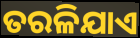
ତରଳିଯାଏ